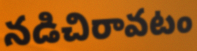
నడిచిరావటం